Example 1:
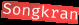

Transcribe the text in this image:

Songkran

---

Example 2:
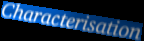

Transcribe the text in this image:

Characterisation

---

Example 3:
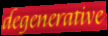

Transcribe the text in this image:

degenerative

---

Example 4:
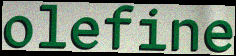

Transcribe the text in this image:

olefine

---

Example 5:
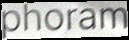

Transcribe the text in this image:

phoram